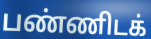
பண்ணிடக்